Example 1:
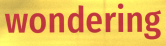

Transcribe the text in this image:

wondering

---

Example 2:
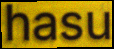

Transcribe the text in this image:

hasu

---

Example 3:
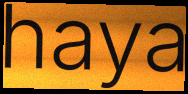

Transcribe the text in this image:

haya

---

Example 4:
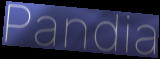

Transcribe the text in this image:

Pandia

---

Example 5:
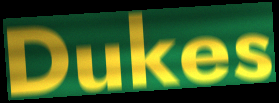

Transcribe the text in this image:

Dukes